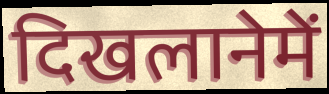
दिखलानेमें